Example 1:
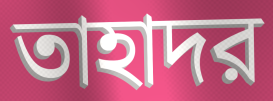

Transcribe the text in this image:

তাহাদর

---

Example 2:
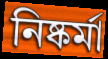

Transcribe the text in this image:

নিষ্কর্মা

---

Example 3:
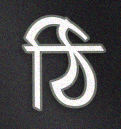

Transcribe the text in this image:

ঠি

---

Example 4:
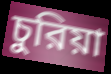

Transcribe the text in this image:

চুরিয়া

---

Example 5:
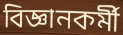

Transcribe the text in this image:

বিজ্ঞানকর্মী